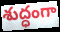
శుద్ధంగా